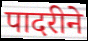
पादरीने